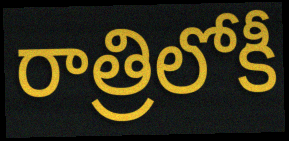
రాత్రిలోకీ